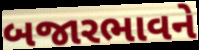
બજારભાવને